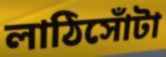
লাঠিসোঁটা